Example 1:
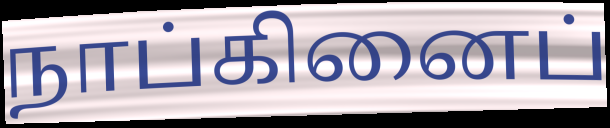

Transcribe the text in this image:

நாப்கினைப்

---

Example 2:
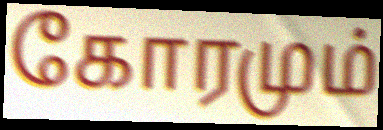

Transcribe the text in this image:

கோரமும்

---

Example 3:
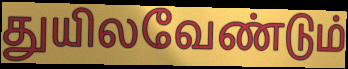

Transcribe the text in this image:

துயிலவேண்டும்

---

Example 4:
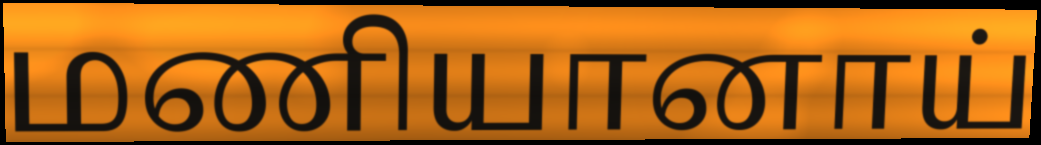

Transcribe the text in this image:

மணியானாய்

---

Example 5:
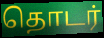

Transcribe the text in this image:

தொடர்